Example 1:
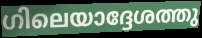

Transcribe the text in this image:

ഗിലെയാദ്ദേശത്തു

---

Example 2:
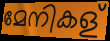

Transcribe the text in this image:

മേനികള്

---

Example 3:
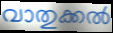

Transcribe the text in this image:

വാതുക്കൽ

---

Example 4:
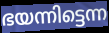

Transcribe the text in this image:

ഭയന്നിട്ടെന്ന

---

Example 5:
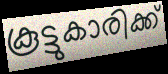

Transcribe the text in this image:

കൂട്ടുകാരിക്ക്